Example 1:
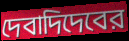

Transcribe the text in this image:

দেবাদিদেবের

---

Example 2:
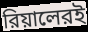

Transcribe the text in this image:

রিয়ালেরই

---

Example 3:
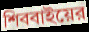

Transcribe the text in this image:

শিববাইয়ের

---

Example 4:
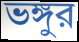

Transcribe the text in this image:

ভঙ্গুর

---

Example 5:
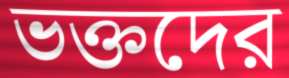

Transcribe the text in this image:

ভক্তদের